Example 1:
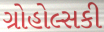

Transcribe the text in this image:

ગ્રોહોલ્સકી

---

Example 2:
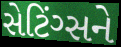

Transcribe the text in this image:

સેટિંગ્સને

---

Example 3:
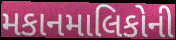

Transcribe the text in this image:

મકાનમાલિકોની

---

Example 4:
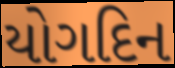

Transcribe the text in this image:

યોગદિન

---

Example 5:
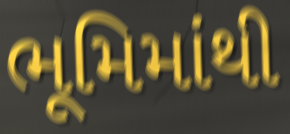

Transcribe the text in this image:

ભૂમિમાંથી